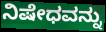
ನಿಷೇಧವನ್ನು